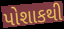
પોશાકથી